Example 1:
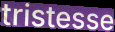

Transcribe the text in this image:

tristesse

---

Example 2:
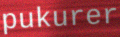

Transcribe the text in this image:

pukurer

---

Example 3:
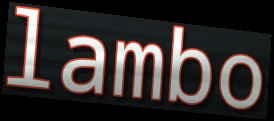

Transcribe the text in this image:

lambo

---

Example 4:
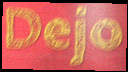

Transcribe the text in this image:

Dejo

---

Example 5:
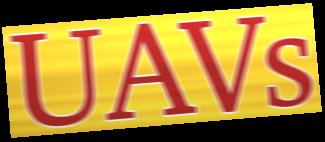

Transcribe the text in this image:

UAVs